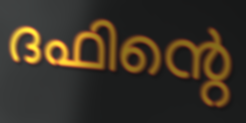
ദഫിന്റെ